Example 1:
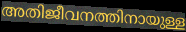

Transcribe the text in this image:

അതിജീവനത്തിനായുള്ള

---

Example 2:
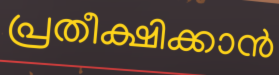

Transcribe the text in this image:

പ്രതീക്ഷിക്കാൻ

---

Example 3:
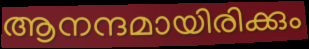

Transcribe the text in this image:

ആനന്ദമായിരിക്കും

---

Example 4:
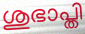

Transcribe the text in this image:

ശുഭാപ്തി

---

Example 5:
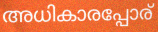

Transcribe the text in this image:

അധികാരപ്പോര്